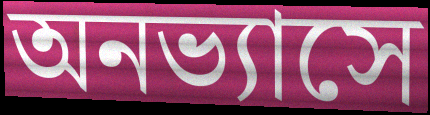
অনভ্যাসে